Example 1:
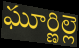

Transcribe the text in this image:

ఘూర్ణిల్లె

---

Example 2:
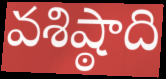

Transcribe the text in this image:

వశిష్ఠాది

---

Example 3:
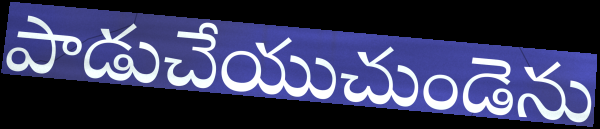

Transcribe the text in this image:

పాడుచేయుచుండెను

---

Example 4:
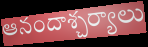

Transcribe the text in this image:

ఆనందాశ్చర్యాలు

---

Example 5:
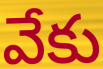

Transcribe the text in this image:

వేకు